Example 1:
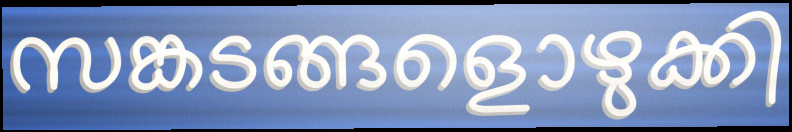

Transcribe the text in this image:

സങ്കടങ്ങളൊഴുക്കി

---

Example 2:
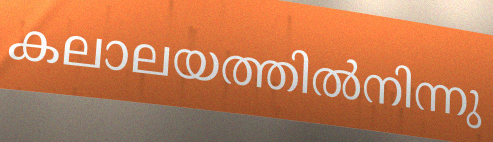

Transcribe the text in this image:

കലാലയത്തിൽനിന്നു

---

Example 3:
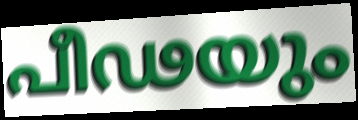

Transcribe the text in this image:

പീഢയും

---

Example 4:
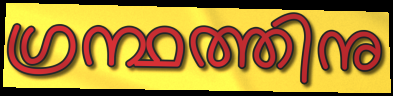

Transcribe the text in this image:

ഗ്രന്ഥത്തിനു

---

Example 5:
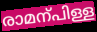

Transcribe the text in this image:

രാമന്പിള്ള